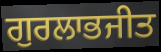
ਗੁਰਲਾਭਜੀਤ